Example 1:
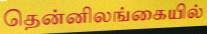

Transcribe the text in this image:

தென்னிலங்கையில்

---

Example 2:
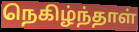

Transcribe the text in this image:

நெகிழ்ந்தாள்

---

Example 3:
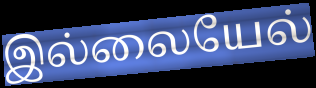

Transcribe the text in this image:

இல்லையேல்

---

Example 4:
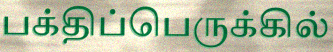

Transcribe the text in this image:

பக்திப்பெருக்கில்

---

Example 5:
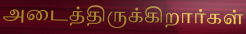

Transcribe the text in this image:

அடைத்திருக்கிறார்கள்